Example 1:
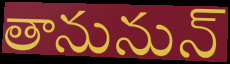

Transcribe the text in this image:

తానునున్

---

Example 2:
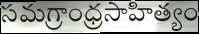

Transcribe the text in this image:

సమగ్రాంధ్రసాహిత్యం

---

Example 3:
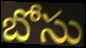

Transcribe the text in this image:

బోసు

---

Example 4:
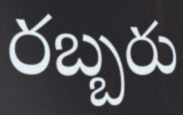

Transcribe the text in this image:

రబ్బరు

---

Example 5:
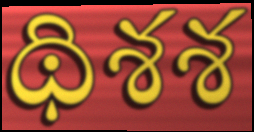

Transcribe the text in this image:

థిశశ